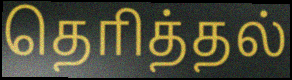
தெரித்தல்